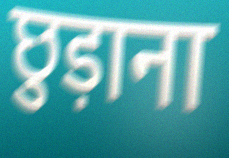
छुड़ाना